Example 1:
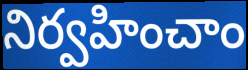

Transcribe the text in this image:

నిర్వహించాం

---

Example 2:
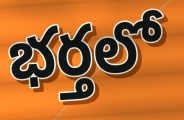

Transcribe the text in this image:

భర్తలో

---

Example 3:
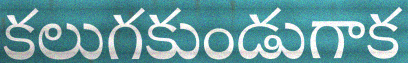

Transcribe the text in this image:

కలుగకుండుగాక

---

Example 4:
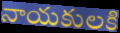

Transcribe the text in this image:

నాయకులకి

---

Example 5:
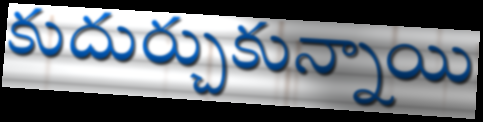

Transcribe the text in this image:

కుదుర్చుకున్నాయి